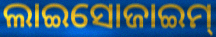
ଲାଇସୋଜାଇମ୍